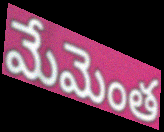
మేమెంత